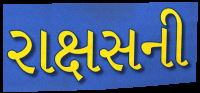
રાક્ષસની